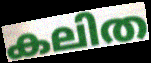
കലിത